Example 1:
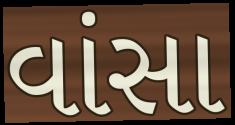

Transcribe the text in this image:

વાંસા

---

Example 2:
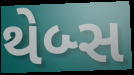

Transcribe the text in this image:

થેબ્સ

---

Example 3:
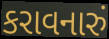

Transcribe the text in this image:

કરાવનારું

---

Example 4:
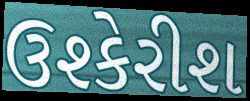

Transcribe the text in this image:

ઉશ્કેરીશ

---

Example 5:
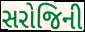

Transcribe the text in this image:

સરોજિની